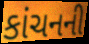
કાંચનની